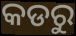
କଡରୁ